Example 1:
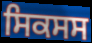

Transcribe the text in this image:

ਸਿਕਸਸ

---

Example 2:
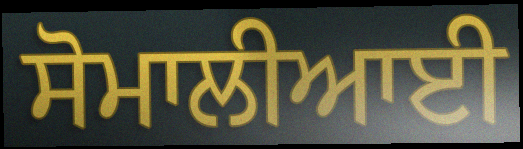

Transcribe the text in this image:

ਸੋਮਾਲੀਆਈ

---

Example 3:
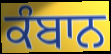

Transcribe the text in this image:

ਕੰਬਾਨ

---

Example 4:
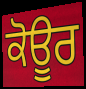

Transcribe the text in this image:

ਕੋਊਰ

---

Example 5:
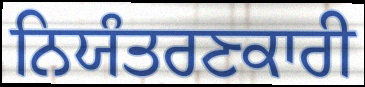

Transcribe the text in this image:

ਨਿਯੰਤਰਣਕਾਰੀ